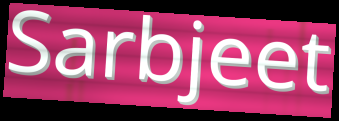
Sarbjeet